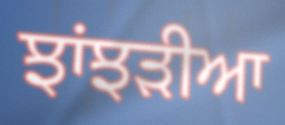
ਝਾਂਝੜੀਆ